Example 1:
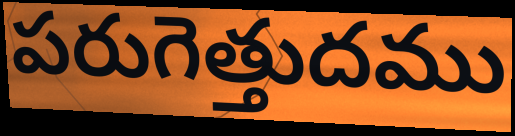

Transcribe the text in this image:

పరుగెత్తుదము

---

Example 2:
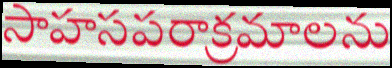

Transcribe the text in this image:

సాహసపరాక్రమాలను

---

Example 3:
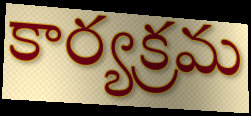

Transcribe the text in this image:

కార్యక్రమ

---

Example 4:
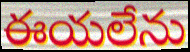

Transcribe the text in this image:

ఈయలేను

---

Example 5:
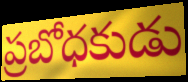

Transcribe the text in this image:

ప్రబోధకుడు